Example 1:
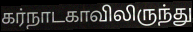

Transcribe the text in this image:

கர்நாடகாவிலிருந்து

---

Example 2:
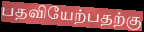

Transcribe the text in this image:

பதவியேற்பதற்கு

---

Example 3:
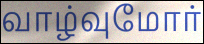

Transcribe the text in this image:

வாழ்வுமோர்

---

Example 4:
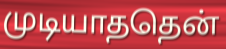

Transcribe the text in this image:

முடியாததென்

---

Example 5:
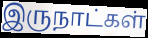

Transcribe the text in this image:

இருநாட்கள்